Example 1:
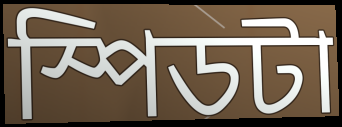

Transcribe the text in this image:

স্পিডটা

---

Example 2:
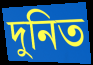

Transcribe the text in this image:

দুনিত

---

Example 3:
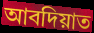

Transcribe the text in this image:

আবদিয়াত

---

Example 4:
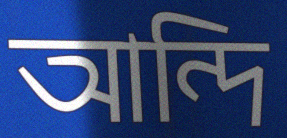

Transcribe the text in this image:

আন্দি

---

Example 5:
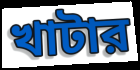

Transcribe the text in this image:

খাটার